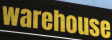
warehouse